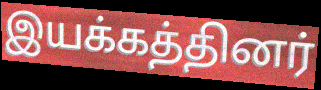
இயக்கத்தினர்